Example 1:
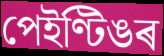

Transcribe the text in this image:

পেইণ্টিঙৰ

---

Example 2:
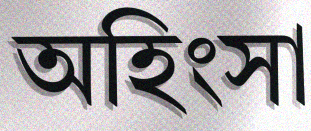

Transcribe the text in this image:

অহিংসা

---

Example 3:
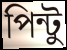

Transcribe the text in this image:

পিন্টু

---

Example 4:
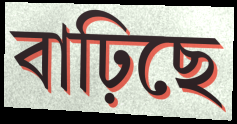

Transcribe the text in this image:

বাঢ়িছে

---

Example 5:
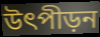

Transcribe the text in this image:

উৎপীড়ন